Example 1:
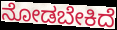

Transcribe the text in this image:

ನೋಡಬೇಕಿದೆ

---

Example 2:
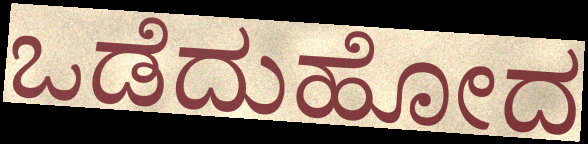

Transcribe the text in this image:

ಒಡೆದುಹೋದ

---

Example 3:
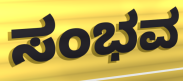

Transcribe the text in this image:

ಸಂಭವ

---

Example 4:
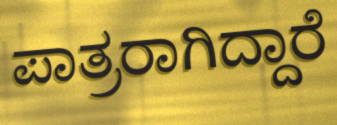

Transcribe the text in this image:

ಪಾತ್ರರಾಗಿದ್ದಾರೆ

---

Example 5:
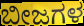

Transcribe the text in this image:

ಬೀಜಗಳ